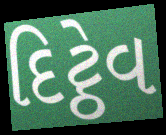
દિટ્ઠેવ